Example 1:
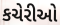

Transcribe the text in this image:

કચેરીઓ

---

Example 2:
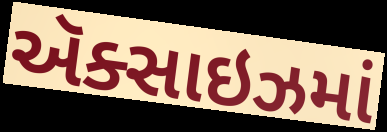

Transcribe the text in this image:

ઍક્સાઇઝમાં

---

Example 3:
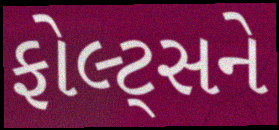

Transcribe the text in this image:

ફોલ્ટ્સને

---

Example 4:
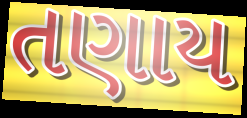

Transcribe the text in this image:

તણાય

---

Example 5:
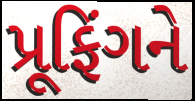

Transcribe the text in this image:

પ્રૂફિંગને